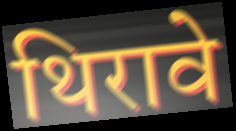
थिरावे